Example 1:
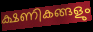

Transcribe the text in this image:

ക്ഷണികങ്ങളും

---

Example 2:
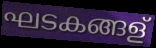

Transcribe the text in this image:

ഘടകങ്ങള്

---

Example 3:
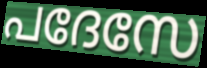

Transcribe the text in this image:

പദേസേ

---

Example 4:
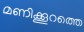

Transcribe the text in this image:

മണിക്കൂറത്തെ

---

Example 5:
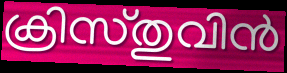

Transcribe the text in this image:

ക്രിസ്തുവിൻ